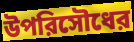
উপরিসৌধের